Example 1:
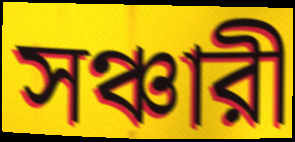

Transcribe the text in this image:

সঞ্চারী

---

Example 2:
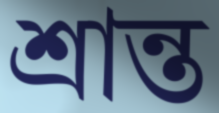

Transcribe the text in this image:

শ্রান্ত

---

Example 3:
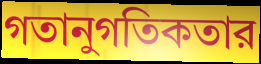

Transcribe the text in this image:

গতানুগতিকতার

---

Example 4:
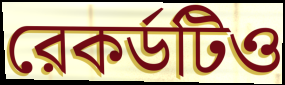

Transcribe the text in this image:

রেকর্ডটিও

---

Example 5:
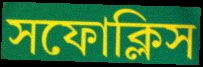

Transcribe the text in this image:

সফোক্লিস